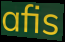
afis